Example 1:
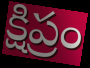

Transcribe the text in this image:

క్షిప్రం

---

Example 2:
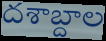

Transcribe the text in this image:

దశాబ్దాల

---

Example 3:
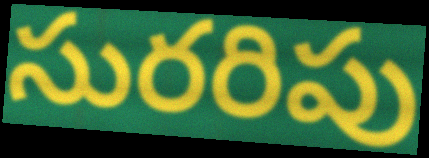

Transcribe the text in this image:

సురరిపు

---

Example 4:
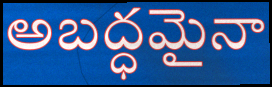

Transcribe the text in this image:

అబద్ధమైనా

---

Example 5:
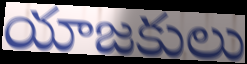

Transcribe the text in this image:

యాజకులు